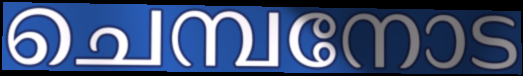
ചെമ്പനോട